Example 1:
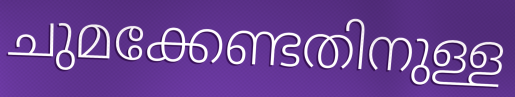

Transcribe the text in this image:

ചുമക്കേണ്ടതിനുള്ള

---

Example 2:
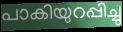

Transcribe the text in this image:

പാകിയുറപ്പിച്ചു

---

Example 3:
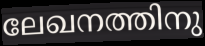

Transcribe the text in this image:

ലേഖനത്തിനു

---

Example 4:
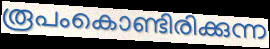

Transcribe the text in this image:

രൂപംകൊണ്ടിരിക്കുന്ന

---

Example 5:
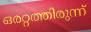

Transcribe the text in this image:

ഒരറ്റത്തിരുന്ന്